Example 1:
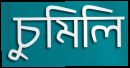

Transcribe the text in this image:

চুমিলি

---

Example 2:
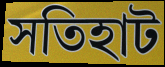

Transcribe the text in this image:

সতিহাট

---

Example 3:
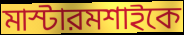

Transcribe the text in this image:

মাস্টারমশাইকে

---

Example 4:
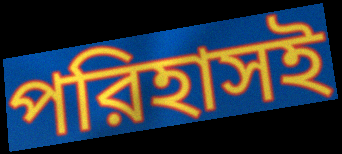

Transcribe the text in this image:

পরিহাসই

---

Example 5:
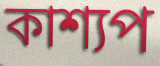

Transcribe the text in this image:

কাশ্যপ